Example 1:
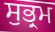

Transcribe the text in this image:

ਸੁਭ੍ਰਮ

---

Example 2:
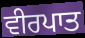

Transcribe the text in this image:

ਵੀਰਪਾਤ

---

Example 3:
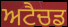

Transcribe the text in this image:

ਅਟੈਚਡ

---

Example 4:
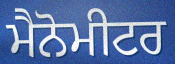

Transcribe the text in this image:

ਮੈਨੋਮੀਟਰ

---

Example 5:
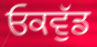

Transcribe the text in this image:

ਓਕਵੁੱਡ